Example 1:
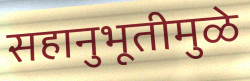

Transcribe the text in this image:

सहानुभूतीमुळे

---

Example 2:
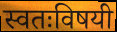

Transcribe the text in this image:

स्वतःविषयी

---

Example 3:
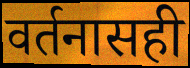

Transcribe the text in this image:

वर्तनासही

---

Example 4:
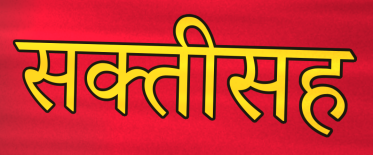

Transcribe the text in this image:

सक्तीसह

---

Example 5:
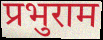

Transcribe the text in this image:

प्रभुराम